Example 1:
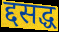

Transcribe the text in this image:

द्दसद्ध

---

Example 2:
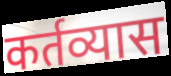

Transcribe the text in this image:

कर्तव्यास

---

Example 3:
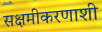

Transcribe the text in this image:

सक्षमीकरणाशी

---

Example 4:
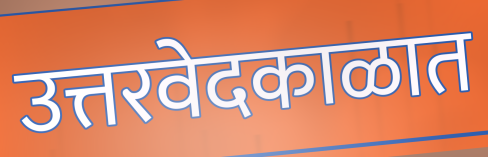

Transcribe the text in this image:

उत्तरवेदकाळात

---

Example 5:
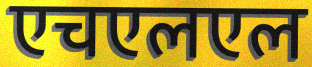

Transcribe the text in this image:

एचएलएल